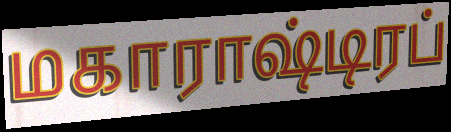
மகாராஷ்டிரப்